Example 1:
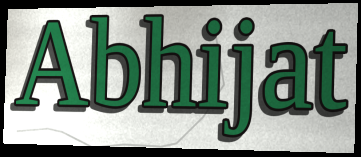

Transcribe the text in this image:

Abhijat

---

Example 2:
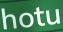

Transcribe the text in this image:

hotu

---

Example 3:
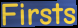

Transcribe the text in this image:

Firsts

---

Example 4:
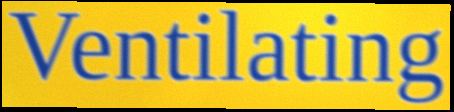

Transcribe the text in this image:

Ventilating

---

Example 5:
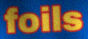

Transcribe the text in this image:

foils